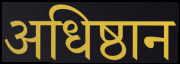
अधिष्ठान